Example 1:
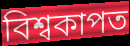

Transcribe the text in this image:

বিশ্বকাপত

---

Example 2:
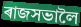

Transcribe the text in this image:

ৰাজসভালৈ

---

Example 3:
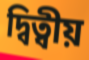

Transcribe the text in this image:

দ্বিত্বীয়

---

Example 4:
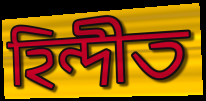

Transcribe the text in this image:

হিন্দীত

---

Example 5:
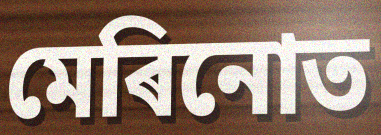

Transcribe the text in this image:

মেৰিনোত